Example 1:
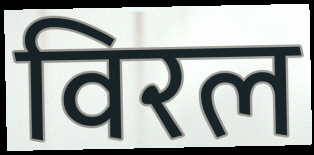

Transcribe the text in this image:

विरल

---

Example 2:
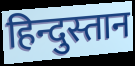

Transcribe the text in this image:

हिन्‍दुस्‍तान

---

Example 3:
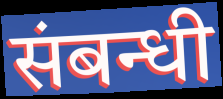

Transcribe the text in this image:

संबन्‍धी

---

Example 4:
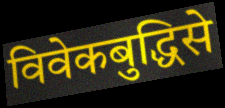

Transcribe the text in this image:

विवेकबुद्धिसे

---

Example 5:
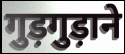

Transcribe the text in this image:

गुड़गुड़ाने